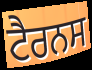
ਟੈਰਨਸ